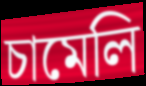
চামেলি